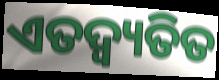
ଏତଦ୍ବ୍ୟତିତ